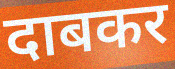
दाबकर